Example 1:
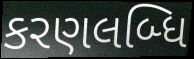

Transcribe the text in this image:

કરણલબ્ધિ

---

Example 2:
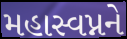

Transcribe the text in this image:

મહાસ્વપ્નને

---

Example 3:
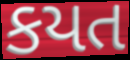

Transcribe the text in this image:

કયત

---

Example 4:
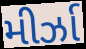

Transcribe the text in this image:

મીર્ઝા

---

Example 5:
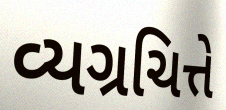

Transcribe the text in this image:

વ્યગ્રચિત્તે